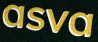
asva